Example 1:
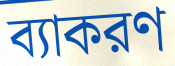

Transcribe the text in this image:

ব্যাকরণ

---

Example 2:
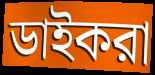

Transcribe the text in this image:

ডাইকরা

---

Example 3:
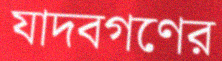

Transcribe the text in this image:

যাদবগণের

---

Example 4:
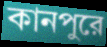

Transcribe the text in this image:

কানপুরে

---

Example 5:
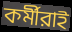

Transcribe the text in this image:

কর্মীরাই